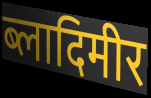
ब्लादिमीर